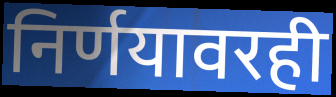
निर्णयावरही